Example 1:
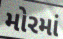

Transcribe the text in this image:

મોરમાં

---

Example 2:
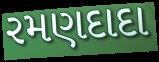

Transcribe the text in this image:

રમણદાદા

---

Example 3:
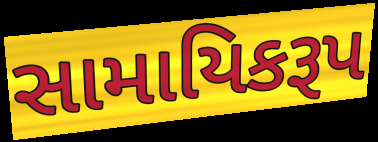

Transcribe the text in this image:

સામાયિકરૂપ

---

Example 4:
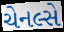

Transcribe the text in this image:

ચેનલ્સે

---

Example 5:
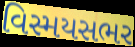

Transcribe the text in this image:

વિસ્મયસભર